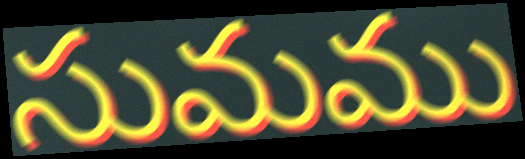
సుమము